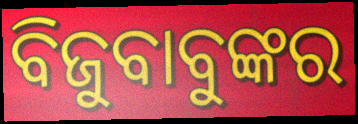
ବିଜୁବାବୁଙ୍କର